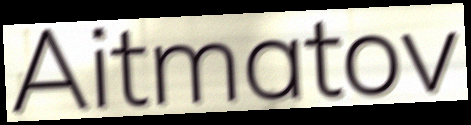
Aitmatov